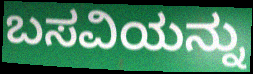
ಬಸವಿಯನ್ನು